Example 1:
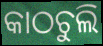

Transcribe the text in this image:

କାଠଚୁଲି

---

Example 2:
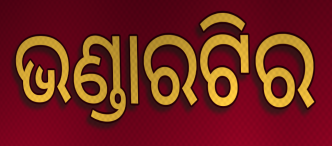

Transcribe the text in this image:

ଭଣ୍ଡାରଟିର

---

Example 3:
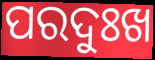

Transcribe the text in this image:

ପରଦୁଃଖ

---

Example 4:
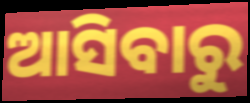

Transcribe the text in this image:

ଆସିବାରୁ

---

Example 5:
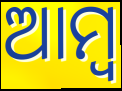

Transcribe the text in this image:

ଆମ୍ୱ